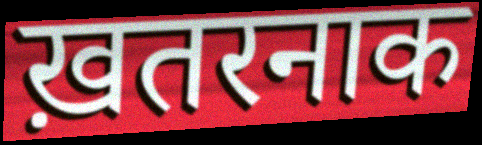
ख़तरनाक